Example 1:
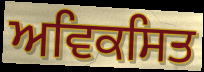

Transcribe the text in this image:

ਅਵਿਕਸਿਤ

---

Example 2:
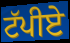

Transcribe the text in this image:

ਟੱਪੀਏ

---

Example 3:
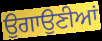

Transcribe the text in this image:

ਉਗਾਉਣੀਆਂ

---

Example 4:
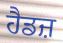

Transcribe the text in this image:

ਹੈਡਜ਼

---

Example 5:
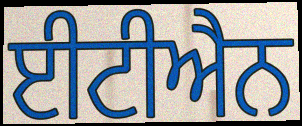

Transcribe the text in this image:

ਈਟੀਐਨ